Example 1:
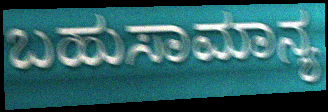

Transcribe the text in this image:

ಬಹುಸಾಮಾನ್ಯ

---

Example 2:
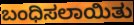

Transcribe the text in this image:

ಬಂಧಿಸಲಾಯಿತು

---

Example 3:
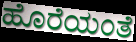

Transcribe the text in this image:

ಹೊರೆಯಂತೆ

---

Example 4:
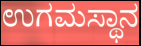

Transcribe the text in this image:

ಉಗಮಸ್ಥಾನ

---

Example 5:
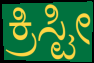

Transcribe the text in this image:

ಕ್ರಿಸ್ಟೀ